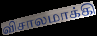
விசாலமாக்கி